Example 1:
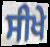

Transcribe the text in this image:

ਸੀਖੇ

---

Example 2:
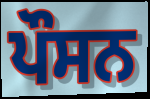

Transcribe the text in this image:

ਪੌਸਨ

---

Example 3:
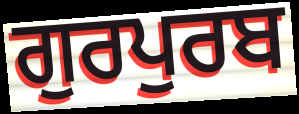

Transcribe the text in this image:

ਗੁਰਪੁਰਬ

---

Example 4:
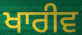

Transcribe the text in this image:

ਖਾਰੀਵ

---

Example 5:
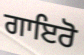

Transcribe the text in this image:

ਗਾਇਰੋ